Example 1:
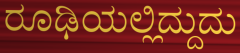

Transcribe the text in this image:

ರೂಢಿಯಲ್ಲಿದ್ದುದು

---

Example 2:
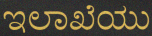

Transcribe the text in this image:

ಇಲಾಖೆಯು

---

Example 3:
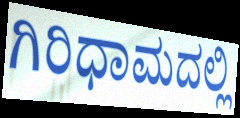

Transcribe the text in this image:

ಗಿರಿಧಾಮದಲ್ಲಿ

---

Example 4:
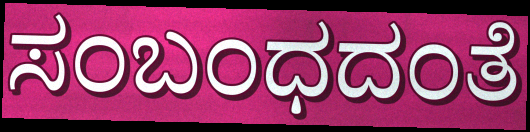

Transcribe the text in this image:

ಸಂಬಂಧದಂತೆ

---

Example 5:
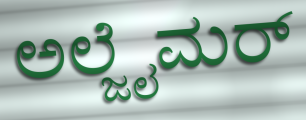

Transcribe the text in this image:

ಅಲ್ಜೈಮರ್